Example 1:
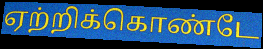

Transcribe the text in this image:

ஏற்றிக்கொண்டே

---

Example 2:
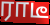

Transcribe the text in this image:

ராடீ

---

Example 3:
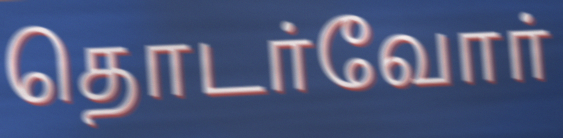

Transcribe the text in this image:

தொடர்வோர்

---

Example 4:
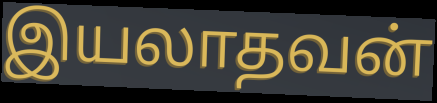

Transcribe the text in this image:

இயலாதவன்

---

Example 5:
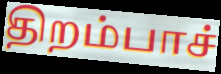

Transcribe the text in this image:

திறம்பாச்